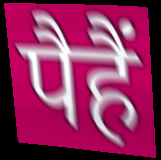
पैहैं